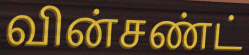
வின்சண்ட்